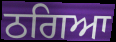
ਠਗਿਆ